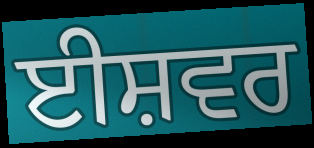
ਈਸ਼ਵਰ